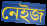
নেইজ